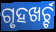
ଗୃହଖର୍ଚ୍ଚ